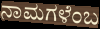
ನಾಮಗಳೆಂಬ